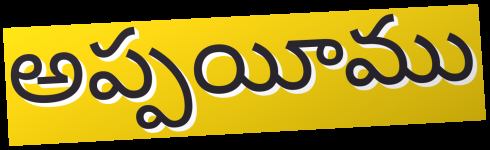
అప్పయీము